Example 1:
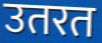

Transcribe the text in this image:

उतरत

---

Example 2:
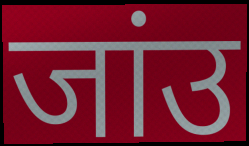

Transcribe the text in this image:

जांउ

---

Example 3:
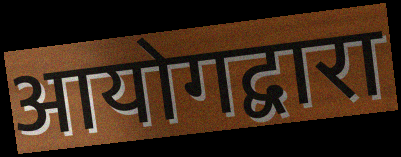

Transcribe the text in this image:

आयोगद्वारा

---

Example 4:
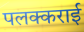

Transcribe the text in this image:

पलक्कराई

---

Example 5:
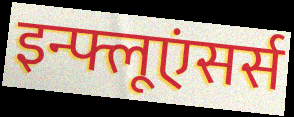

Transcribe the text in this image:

इन्फ्लूएंसर्स